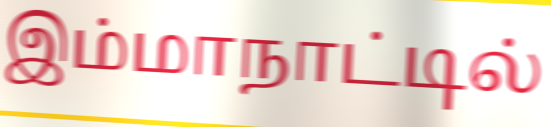
இம்மாநாட்டில்